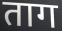
ताग